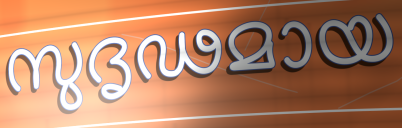
സുദൃഢമായ